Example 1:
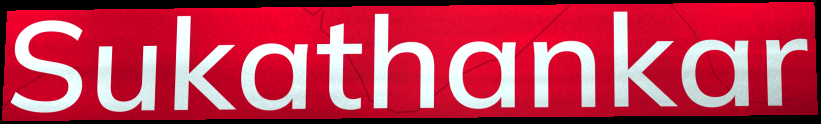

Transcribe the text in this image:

Sukathankar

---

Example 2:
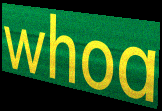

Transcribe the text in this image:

whoa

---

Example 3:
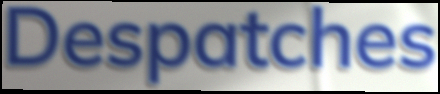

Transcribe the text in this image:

Despatches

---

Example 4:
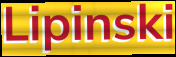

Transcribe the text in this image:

Lipinski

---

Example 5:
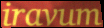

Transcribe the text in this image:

iravum